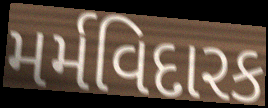
મર્મવિદારક